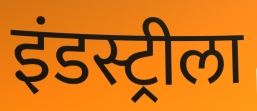
इंडस्ट्रीला